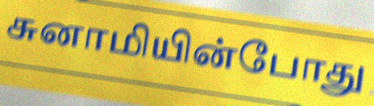
சுனாமியின்போது